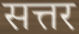
सत्तर